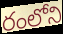
రంలోని